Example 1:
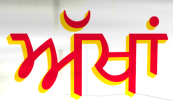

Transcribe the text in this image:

ਅੱਖਾਂ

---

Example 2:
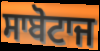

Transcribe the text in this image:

ਸਾਬੋਟਾਜ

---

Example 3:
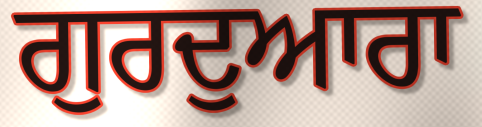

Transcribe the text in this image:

ਗੁਰਦੁਆਰਾ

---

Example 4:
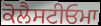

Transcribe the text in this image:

ਕੋਲੈਸਟੀਓਮਾ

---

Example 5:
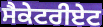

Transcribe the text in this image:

ਸੈਕੇਟਰੀਏਟ